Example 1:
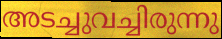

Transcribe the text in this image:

അടച്ചുവച്ചിരുന്നു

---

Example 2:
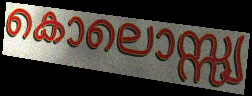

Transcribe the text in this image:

കൊലൊസ്സ്യ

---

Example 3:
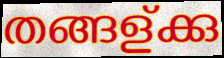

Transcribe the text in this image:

തങ്ങള്ക്കു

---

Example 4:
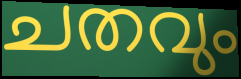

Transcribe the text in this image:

ചതവും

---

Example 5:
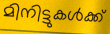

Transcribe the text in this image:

മിനിട്ടുകൾക്ക്